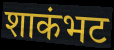
शाकंभट